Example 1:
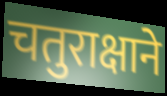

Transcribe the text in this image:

चतुराक्षाने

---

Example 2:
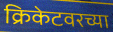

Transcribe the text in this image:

क्रिकेटवरच्या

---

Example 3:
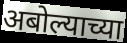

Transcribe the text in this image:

अबोल्याच्या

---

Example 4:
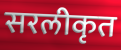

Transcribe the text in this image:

सरलीकृत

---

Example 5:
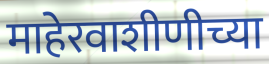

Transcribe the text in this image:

माहेरवाशीणीच्या